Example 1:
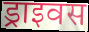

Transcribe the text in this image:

ड्राइवस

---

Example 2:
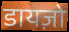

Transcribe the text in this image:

डायज़ो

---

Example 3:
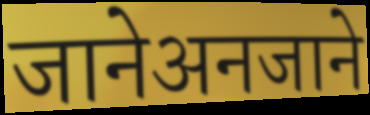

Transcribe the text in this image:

जानेअनजाने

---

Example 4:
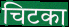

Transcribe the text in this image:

चिटका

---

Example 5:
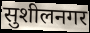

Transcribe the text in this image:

सुशीलनगर